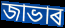
জাভাৰ